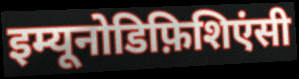
इम्यूनोडिफ़िशिएंसी